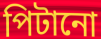
পিটানো